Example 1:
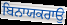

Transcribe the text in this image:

ਬਿਨਾਯਕਰਾਉ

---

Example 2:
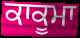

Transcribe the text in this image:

ਕਾਕੂਮਾ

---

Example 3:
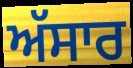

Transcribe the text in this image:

ਅੱਸਾਰ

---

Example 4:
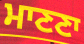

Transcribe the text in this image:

ਮਾਣਣਾ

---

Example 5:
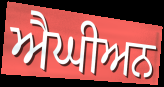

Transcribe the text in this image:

ਐਘੀਅਨ